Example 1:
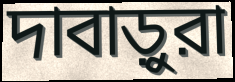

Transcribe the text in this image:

দাবাড়ুরা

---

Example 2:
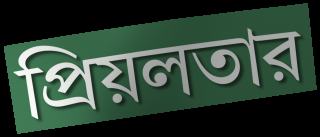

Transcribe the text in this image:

প্রিয়লতার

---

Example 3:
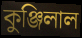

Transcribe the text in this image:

কুঞ্জিলাল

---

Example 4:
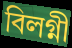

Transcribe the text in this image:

বিলগ্নী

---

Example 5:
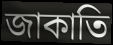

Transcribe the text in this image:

জাকাতি